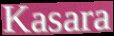
Kasara